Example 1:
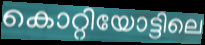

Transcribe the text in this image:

കൊറ്റിയോട്ടിലെ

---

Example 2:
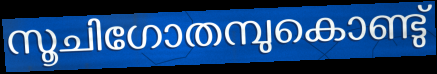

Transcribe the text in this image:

സൂചിഗോതമ്പുകൊണ്ടു്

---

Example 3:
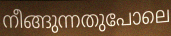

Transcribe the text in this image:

നീങ്ങുന്നതുപോലെ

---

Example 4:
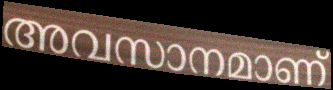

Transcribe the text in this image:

അവസാനമാണ്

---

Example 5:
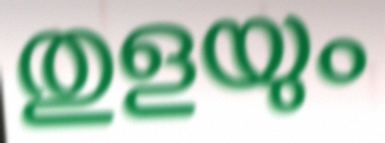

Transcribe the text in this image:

തുളയും